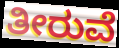
ತೀರುವೆ